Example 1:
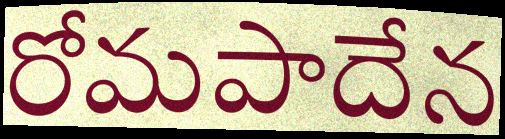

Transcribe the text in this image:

రోమపాదేన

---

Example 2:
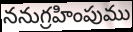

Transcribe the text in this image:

ననుగ్రహింపుము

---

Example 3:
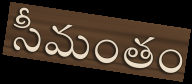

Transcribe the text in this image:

సీమంతం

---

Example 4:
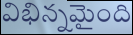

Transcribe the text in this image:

విభిన్నమైంది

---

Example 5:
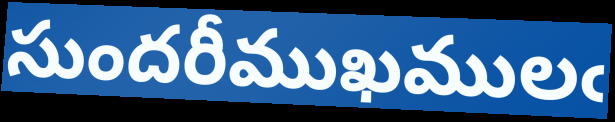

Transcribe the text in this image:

సుందరీముఖములఁ